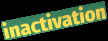
inactivation